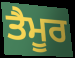
ਤੈਮੂਰ